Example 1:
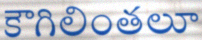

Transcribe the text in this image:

కౌగిలింతలూ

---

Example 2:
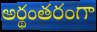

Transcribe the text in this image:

అర్థంతరంగా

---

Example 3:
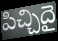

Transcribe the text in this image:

పిచ్చిదై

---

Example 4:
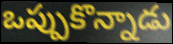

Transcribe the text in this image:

ఒప్పుకొన్నాడు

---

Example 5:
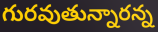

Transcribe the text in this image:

గురవుతున్నారన్న